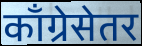
काँग्रेसेतर